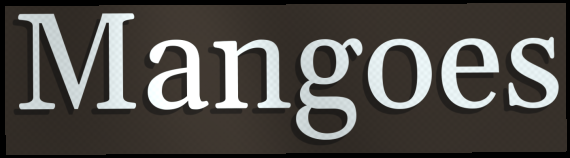
Mangoes